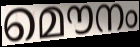
മൌനം